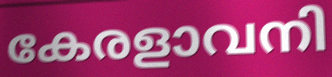
കേരളാവനി